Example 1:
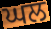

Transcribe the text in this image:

ਘਲ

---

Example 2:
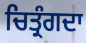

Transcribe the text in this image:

ਚਿਤ੍ਰੰਗਦਾ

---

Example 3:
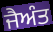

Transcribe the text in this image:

ਜੈਅੰਤ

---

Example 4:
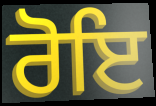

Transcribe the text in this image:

ਰੋਇ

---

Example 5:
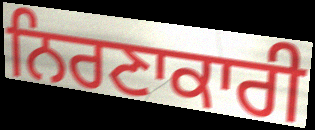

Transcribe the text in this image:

ਨਿਰਣਾਕਾਰੀ